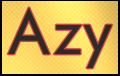
Azy